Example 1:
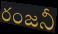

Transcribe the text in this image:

రంజనీ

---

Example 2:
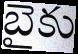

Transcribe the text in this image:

బైకు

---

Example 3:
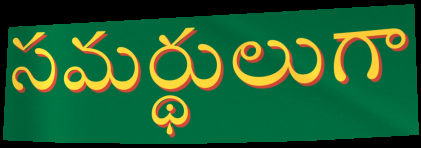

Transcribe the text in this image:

సమర్థులుగా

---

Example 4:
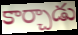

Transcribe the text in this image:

కార్చాడు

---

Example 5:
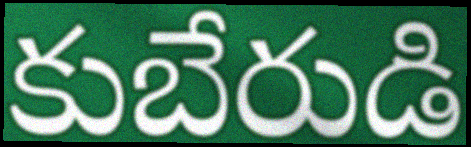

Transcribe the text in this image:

కుబేరుడి